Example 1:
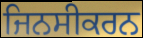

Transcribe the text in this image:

ਜਿਨਸੀਕਰਨ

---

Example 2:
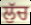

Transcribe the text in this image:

ਲੁੱਚ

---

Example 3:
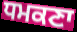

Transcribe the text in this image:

ਧਮਕਣਾ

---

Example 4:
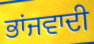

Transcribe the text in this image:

ਭਾਂਜਵਾਦੀ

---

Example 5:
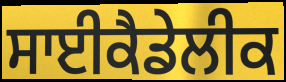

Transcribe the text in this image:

ਸਾਈਕੈਡੇਲੀਕ